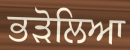
ਭੜੋਲਿਆ